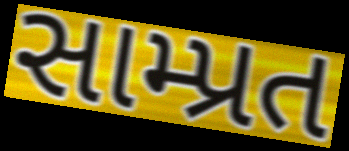
સામ્પ્રત